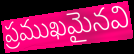
ప్రముఖమైనవి